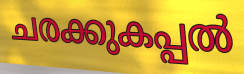
ചരക്കുകപ്പൽ